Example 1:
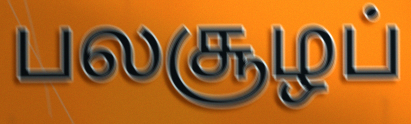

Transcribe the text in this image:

பலசூழப்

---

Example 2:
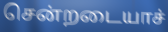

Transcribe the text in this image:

சென்றடையாச்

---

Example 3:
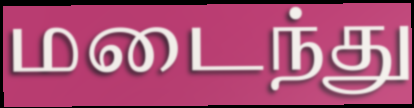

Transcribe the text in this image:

மடைந்து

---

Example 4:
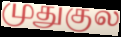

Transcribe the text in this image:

முதுகுல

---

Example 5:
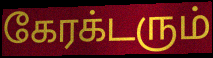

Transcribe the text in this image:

கேரக்டரும்